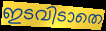
ഇടവിടാതെ